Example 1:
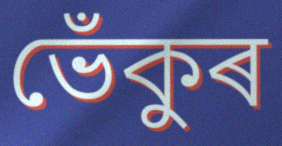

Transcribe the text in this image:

ভেঁকুৰ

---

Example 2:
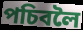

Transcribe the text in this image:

পচিবলৈ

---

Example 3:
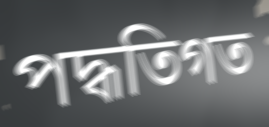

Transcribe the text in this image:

পদ্ধতিগত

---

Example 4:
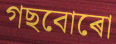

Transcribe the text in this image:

গছবোৰো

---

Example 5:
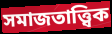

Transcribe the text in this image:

সমাজতাত্ত্বিক